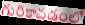
గురికావడంలో